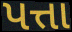
પત્તા